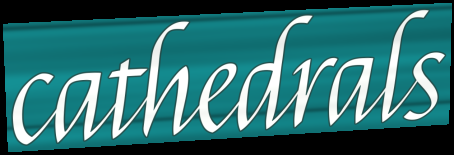
cathedrals